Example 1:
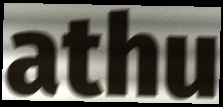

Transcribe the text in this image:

athu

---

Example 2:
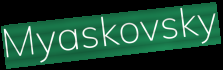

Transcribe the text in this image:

Myaskovsky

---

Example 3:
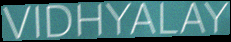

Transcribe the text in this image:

VIDHYALAY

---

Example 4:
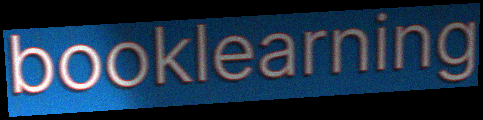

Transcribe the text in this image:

booklearning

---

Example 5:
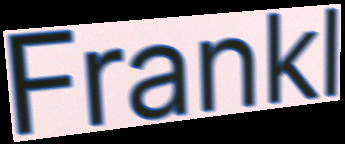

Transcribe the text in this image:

Frankl